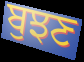
ਬੁਝਣ